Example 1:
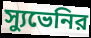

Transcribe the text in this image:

স্যুভেনির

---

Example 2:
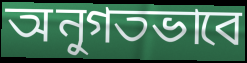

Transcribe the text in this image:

অনুগতভাবে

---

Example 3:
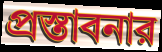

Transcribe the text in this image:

প্রস্তাবনার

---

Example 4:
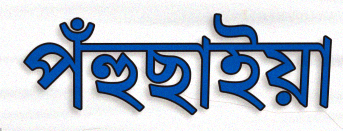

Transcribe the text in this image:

পঁহুছাইয়া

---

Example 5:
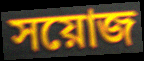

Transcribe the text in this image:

সয়োজ